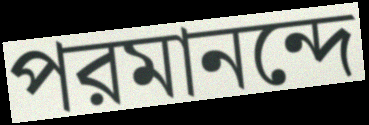
পরমানন্দে